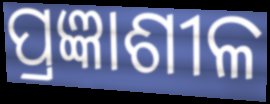
ପ୍ରଜ୍ଞାଶୀଳ